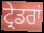
ਟ੍ਰੇਡਰਾਂ